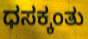
ಧಸಕ್ಕಂತು